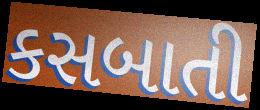
કસબાતી